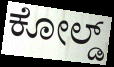
ಕೋಲ್ಡ್